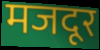
मजदूर